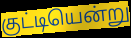
குட்டியென்று